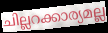
ചില്ലറക്കാര്യമല്ല